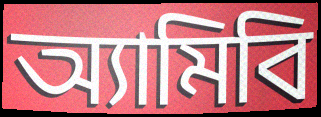
অ্যামিবি